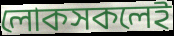
লোকসকলেই